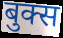
बुक्स